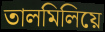
তালমিলিয়ে